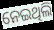
ନେଇଥିଲି